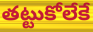
తట్టుకోలేకే